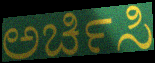
ಅರ್ಚಿಸಿ